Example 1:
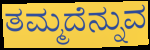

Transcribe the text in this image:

ತಮ್ಮದೆನ್ನುವ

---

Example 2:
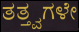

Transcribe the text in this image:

ತತ್ತ್ವಗಳೇ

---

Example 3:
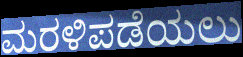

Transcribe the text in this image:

ಮರಳಿಪಡೆಯಲು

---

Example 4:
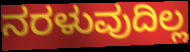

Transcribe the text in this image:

ನರಳುವುದಿಲ್ಲ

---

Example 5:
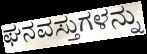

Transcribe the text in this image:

ಘನವಸ್ತುಗಳನ್ನು